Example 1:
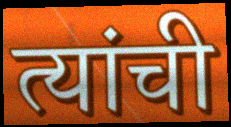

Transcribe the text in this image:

त्‍यांची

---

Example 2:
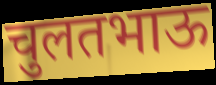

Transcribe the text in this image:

चुलतभाऊ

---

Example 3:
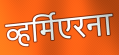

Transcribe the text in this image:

व्हर्मिएरना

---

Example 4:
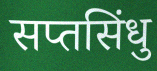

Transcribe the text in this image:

सप्तसिंधु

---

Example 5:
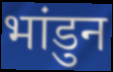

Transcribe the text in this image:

भांडुन